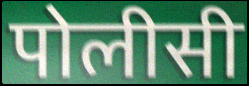
पोलीसी